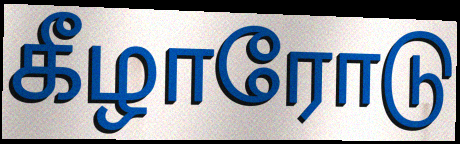
கீழாரோடு